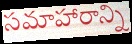
సమాహారాన్ని